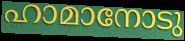
ഹാമാനോടു